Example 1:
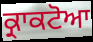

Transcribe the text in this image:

ਕ੍ਰਾਕਟੋਆ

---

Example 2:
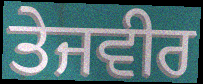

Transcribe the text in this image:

ਤੇਜਵੀਰ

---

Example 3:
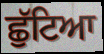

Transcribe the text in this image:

ਛੁੱਟਿਆ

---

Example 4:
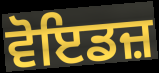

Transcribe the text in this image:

ਵੋਇਡਜ਼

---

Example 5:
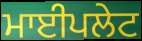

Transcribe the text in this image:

ਮਾਈਪਲੇਟ